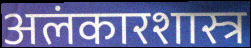
अलंकारशास्त्र